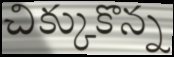
చిక్కుకొన్న